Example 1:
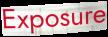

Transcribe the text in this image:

Exposure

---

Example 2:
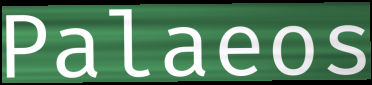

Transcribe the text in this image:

Palaeos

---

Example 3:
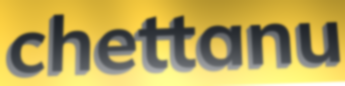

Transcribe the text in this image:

chettanu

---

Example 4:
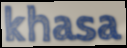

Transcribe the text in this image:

khasa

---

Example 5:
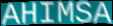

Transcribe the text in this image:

AHIMSA